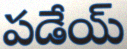
పడేయ్